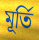
মূৰ্তি